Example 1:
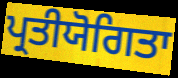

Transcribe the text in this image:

ਪ੍ਰਤੀਯੋਗਿਤਾ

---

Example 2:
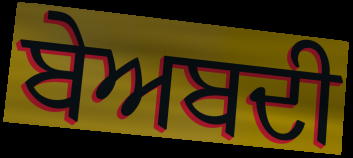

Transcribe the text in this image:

ਬੇਅਬਦੀ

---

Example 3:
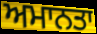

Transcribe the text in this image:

ਅਮਾਨਤਾ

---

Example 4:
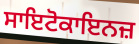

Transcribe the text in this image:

ਸਾਇਟੋਕਾਇਨਜ਼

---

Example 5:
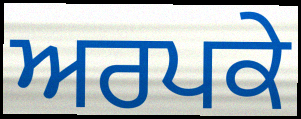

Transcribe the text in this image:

ਅਰਪਕੇ